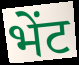
भेंट